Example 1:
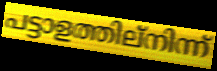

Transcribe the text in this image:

പട്ടാളത്തില്നിന്ന്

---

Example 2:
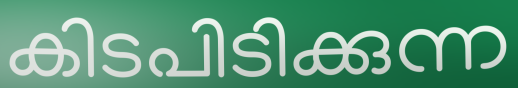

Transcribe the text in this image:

കിടപിടിക്കുന്ന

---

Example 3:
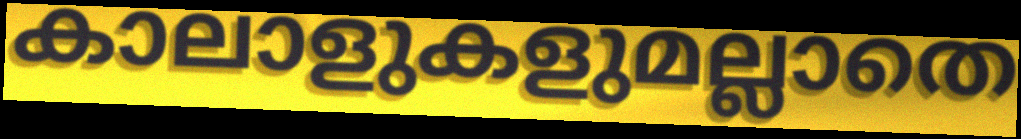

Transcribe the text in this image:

കാലാളുകളുമല്ലാതെ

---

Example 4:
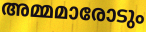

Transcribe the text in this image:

അമ്മമാരോടും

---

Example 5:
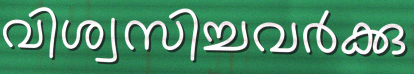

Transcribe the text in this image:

വിശ്വസിച്ചവർക്കു